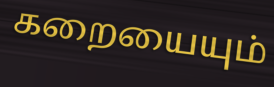
கறையையும்